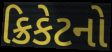
ક્રિકેટનો